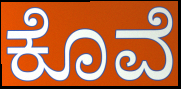
ಕೊವೆ